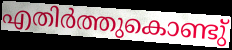
എതിർത്തുകൊണ്ടു്